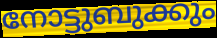
നോട്ടുബുക്കും